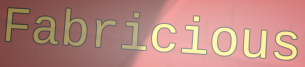
Fabricious